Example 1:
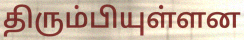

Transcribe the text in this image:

திரும்பியுள்ளன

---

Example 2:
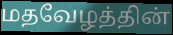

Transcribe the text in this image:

மதவேழத்தின்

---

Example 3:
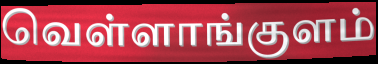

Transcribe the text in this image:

வெள்ளாங்குளம்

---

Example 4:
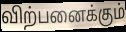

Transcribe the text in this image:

விற்பனைக்கும்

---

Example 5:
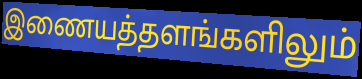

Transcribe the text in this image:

இணையத்தளங்களிலும்